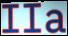
IIa